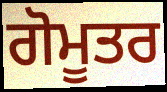
ਗੋਮੂਤਰ